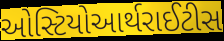
ઓસ્ટિયોઆર્થરાઈટીસ